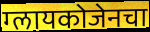
ग्लायकोजेनचा